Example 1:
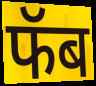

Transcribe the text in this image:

फॅब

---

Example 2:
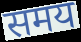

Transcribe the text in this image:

समय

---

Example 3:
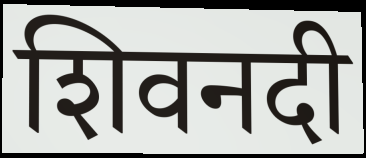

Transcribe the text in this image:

शिवनदी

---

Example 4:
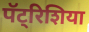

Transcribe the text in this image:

पॅट्रिशिया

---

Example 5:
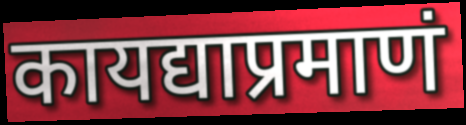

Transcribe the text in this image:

कायद्याप्रमाणं